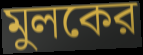
মুলকের